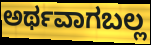
ಅರ್ಥವಾಗಬಲ್ಲ